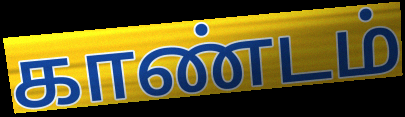
காண்டம்